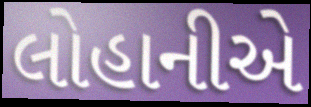
લોહાનીએ